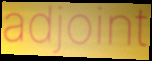
adjoint